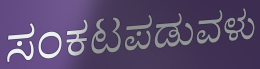
ಸಂಕಟಪಡುವಳು